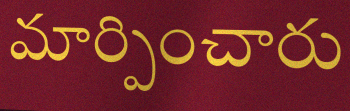
మార్పించారు